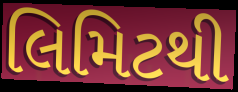
લિમિટથી